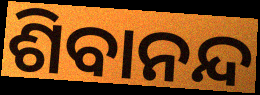
ଶିବାନନ୍ଦ